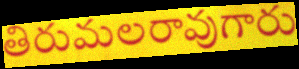
తిరుమలరావుగారు